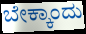
ಬೇಕ್ಕಾಂದು